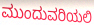
ಮುಂದುವರಿಯಲಿ